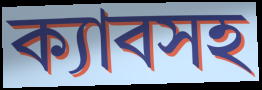
ক্যাবসহ